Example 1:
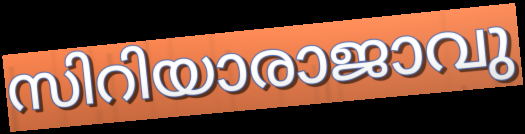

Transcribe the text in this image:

സിറിയാരാജാവു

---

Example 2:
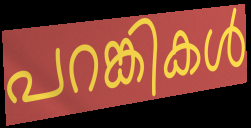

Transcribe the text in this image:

പറങ്കികൾ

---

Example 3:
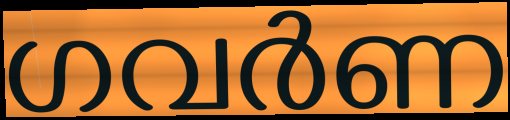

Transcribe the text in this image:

ഗവർണ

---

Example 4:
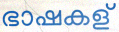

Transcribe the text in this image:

ഭാഷകള്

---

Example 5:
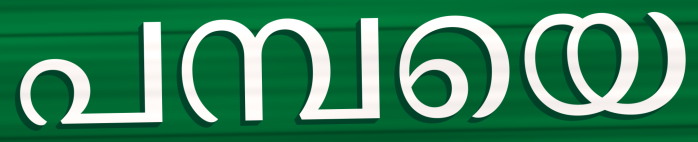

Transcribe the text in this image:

പമ്പയെ